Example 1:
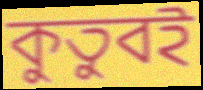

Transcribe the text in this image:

কুতুবই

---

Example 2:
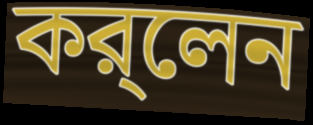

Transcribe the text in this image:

কর্‌লেন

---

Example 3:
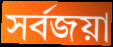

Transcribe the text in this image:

সর্বজয়া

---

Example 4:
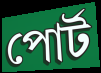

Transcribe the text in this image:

পোর্ট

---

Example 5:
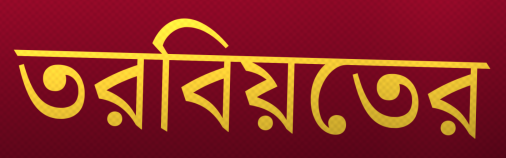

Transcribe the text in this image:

তরবিয়তের